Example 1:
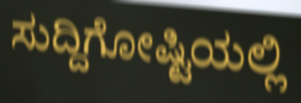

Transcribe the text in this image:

ಸುದ್ದಿಗೋಷ್ಟಿಯಲ್ಲಿ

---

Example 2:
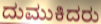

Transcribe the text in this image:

ದುಮುಕಿದರು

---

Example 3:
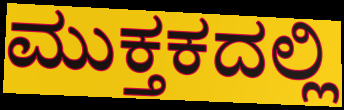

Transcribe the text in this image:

ಮುಕ್ತಕದಲ್ಲಿ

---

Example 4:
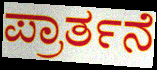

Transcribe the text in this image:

ಪ್ರಾರ್ತನೆ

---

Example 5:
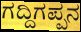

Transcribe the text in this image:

ಗದ್ದಿಗಪ್ಪನ